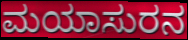
ಮಯಾಸುರನ